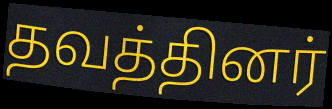
தவத்தினர்